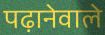
पढ़ानेवाले